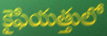
కైఫియత్తులో